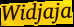
Widjaja